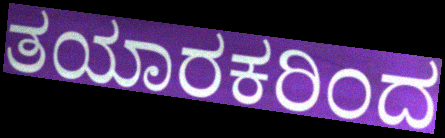
ತಯಾರಕರಿಂದ